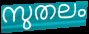
സുതലം